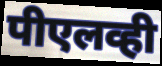
पीएलव्ही